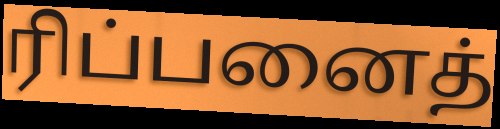
ரிப்பனைத்